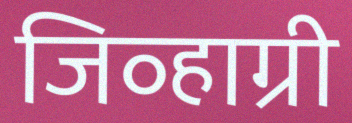
जिव्हाग्री